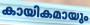
കായികമായും